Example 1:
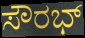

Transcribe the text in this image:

ಸೌರಭ್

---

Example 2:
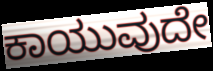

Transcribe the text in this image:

ಕಾಯುವುದೇ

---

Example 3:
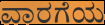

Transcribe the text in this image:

ವಾರಗೆಯ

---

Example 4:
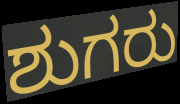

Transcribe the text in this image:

ಶುಗರು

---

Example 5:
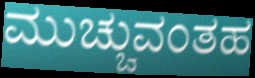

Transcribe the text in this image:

ಮುಚ್ಚುವಂತಹ